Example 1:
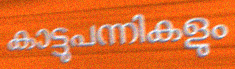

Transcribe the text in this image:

കാട്ടുപന്നികളും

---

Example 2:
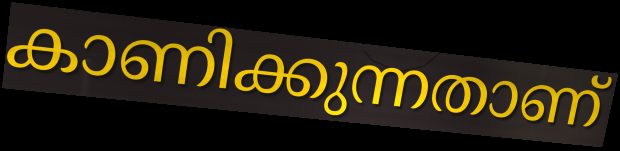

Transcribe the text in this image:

കാണിക്കുന്നതാണ്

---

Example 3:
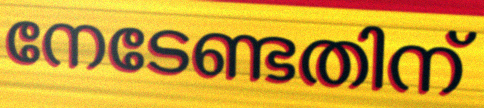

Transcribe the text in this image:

നേടേണ്ടതിന്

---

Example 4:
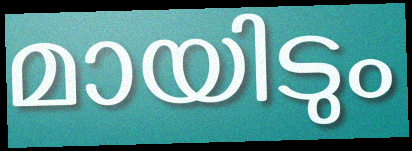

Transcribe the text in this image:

മായിടും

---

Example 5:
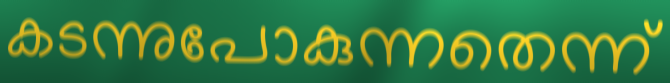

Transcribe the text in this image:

കടന്നുപോകുന്നതെന്ന്